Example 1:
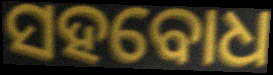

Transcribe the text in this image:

ସହବୋଧ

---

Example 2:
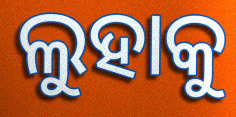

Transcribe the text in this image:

ଲୁହାକୁ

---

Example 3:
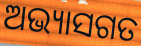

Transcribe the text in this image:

ଅଭ୍ଯାସଗତ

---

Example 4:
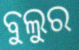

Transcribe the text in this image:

ବୁଲୁର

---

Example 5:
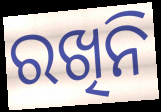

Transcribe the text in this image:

ରଖିନି